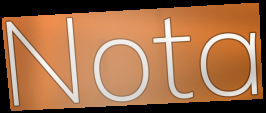
Nota